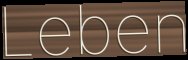
Leben